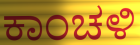
ಕಾಂಚಳಿ